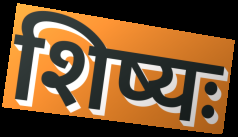
शिष्यः